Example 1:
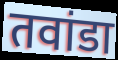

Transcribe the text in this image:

तवांडा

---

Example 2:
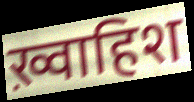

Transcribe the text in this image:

ख़्वाहिश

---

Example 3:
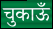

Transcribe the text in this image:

चुकाऊँ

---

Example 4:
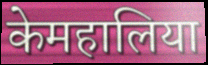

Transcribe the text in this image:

केमहालिया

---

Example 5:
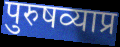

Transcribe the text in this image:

पुरुषव्याप्र